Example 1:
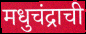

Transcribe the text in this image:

मधुचंद्राची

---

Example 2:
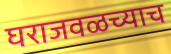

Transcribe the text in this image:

घराजवळच्याच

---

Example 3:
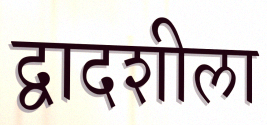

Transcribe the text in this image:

द्वादशीला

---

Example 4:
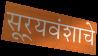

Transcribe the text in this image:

सूर्यवंशाचे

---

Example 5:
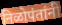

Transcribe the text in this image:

निळोपंतांनी